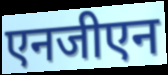
एनजीएन